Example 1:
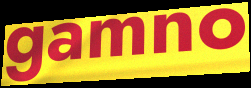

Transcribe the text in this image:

gamno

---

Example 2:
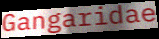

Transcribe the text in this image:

Gangaridae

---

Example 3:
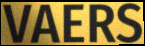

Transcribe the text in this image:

VAERS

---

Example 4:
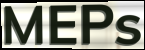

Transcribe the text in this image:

MEPs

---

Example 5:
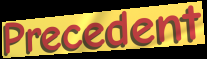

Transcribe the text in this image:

Precedent